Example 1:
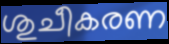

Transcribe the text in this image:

ശുചീകരണ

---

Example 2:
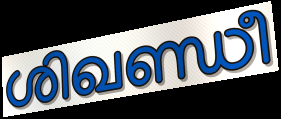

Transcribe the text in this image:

ശിഖണ്ഡീ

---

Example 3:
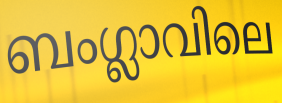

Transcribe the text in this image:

ബംഗ്ലാവിലെ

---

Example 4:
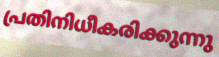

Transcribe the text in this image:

പ്രതിനിധീകരിക്കുന്നു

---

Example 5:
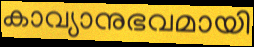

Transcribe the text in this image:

കാവ്യാനുഭവമായി